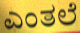
ಎಂತಲೆ